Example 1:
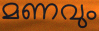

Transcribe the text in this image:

മണവും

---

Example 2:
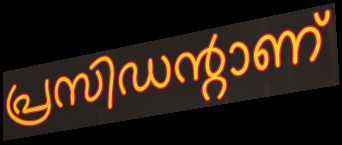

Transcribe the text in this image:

പ്രസിഡന്റാണ്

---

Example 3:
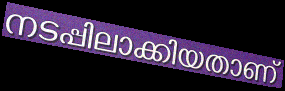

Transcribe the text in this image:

നടപ്പിലാക്കിയതാണ്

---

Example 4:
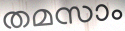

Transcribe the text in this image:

തമസാം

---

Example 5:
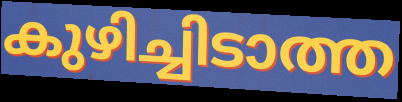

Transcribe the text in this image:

കുഴിച്ചിടാത്ത